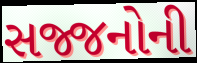
સજ્જનોની